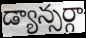
డ్యాన్సర్గా